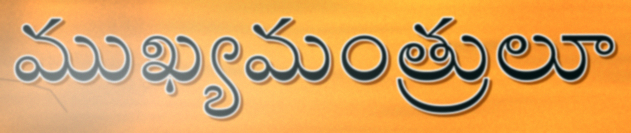
ముఖ్యమంత్రులూ